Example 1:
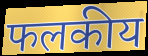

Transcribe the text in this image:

फलकीय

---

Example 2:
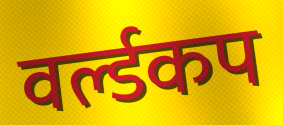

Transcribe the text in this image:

वर्ल्‍डकप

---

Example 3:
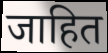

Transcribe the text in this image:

जाहित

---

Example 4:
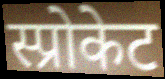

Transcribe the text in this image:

स्प्रोकेट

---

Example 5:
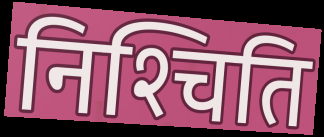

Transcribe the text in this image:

निश्चिति